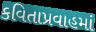
કવિતાપ્રવાહમાં